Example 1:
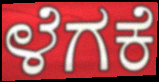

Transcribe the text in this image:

ಳೆಗಕೆ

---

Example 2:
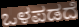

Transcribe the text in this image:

ಒಳಪಡದೆ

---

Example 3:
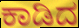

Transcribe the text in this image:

ಕಾಡಿದ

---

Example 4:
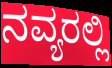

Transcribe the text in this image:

ನವ್ಯರಲ್ಲಿ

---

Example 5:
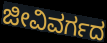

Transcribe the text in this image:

ಜೀವಿವರ್ಗದ